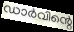
ഡാർവിന്റെ